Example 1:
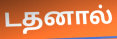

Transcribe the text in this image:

டதனால்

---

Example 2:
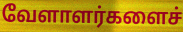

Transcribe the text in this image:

வேளாளர்களைச்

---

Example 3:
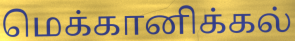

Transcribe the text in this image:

மெக்கானிக்கல்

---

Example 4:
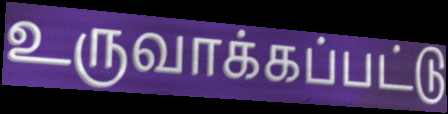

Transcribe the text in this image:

உருவாக்கப்பட்டு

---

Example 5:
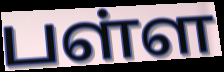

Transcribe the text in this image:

பள்ள